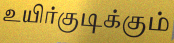
உயிர்குடிக்கும்